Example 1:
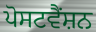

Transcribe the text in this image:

ਪੋਸਟਵੈਂਸ਼ਨ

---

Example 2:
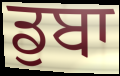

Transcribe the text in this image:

ਡੁਬਾ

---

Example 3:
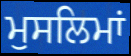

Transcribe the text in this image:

ਮੁਸਲਿਮਾਂ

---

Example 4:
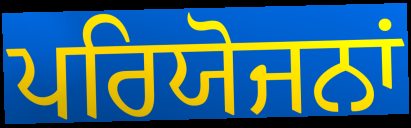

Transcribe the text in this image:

ਪਰਿਯੋਜਨਾਂ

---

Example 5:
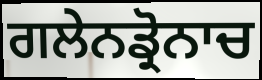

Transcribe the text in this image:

ਗਲੇਨਡ੍ਰੋਨਾਚ